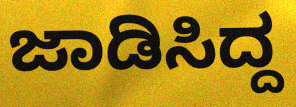
ಜಾಡಿಸಿದ್ದ